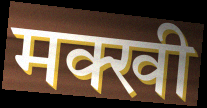
मक्खी